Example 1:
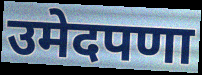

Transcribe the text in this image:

उमेदपणा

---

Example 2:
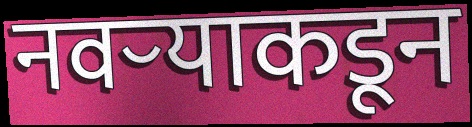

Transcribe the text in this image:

नवऱ्याकडून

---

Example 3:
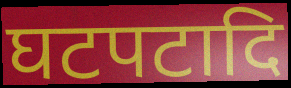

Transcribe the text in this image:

घटपटादि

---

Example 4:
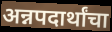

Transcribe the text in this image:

अन्नपदार्थांचा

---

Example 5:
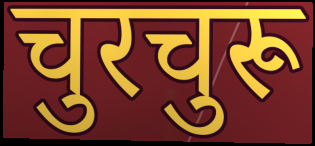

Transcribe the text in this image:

चुरचुरू